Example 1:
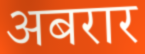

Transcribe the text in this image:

अबरार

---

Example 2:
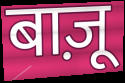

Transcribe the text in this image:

बाज़ू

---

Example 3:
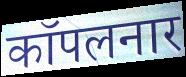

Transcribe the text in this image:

कॉपलनार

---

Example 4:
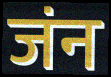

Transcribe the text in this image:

जंन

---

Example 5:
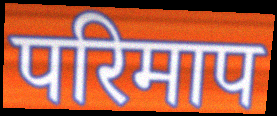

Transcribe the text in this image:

परिमाप